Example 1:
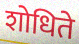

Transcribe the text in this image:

शोधिते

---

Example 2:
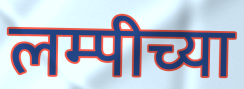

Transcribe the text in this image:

लम्पीच्या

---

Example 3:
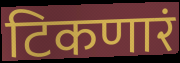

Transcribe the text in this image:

टिकणारं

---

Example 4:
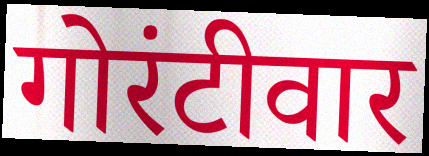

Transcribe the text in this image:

गोरंटीवार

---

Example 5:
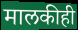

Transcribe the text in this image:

मालकीही